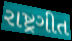
રાષ્ટ્રગીત